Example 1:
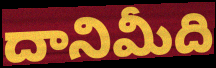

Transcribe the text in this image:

దానిమీది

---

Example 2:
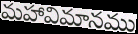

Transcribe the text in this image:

మహావిమానము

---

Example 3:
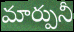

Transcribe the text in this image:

మార్పునీ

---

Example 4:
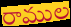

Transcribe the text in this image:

రాముల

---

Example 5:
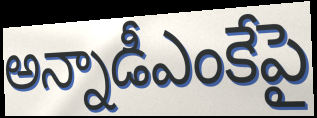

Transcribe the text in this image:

అన్నాడీఎంకేపై